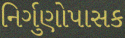
નિર્ગુણોપાસક